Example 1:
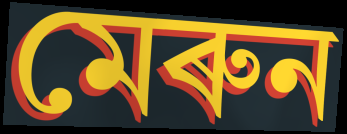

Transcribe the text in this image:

মেৰুন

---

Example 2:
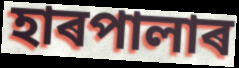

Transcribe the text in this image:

হাৰপালাৰ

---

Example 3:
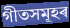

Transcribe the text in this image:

গীতসমূহৰ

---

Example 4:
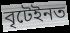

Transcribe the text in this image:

বৃটেইনত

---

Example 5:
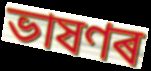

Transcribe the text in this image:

ভাষণৰ